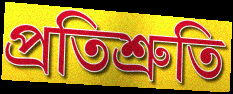
প্ৰতিশ্ৰুতি